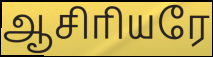
ஆசிரியரே